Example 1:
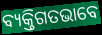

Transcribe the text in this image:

ବ୍ୟକ୍ତିଗତଭାବେ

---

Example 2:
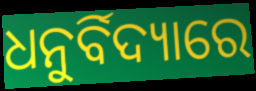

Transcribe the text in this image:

ଧନୁର୍ବିଦ୍ୟାରେ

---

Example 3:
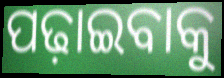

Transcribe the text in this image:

ପଢ଼ାଇବାକୁ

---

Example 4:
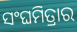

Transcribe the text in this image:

ସଂଘମିତ୍ରାର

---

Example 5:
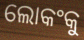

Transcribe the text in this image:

ଲୋକଂକୁ